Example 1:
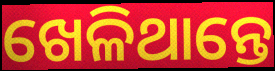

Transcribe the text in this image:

ଖେଳିଥାନ୍ତେ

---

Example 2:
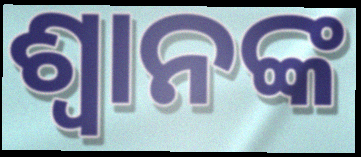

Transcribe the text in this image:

ଶ୍ବାନଙ୍କ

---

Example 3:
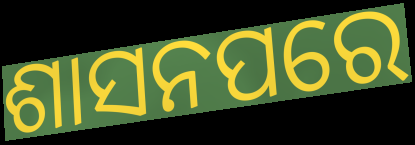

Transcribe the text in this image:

ଶାସନପରେ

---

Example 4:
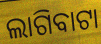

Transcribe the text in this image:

ଲାଗିବାଟା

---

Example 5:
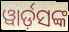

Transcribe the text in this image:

ୱାର୍ଡ଼ସଙ୍କ